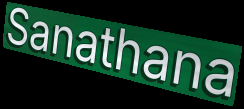
Sanathana